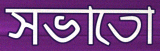
সভাতো